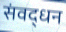
संवद्धन